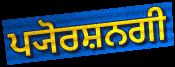
ਪ੍ਯੋਰਸ਼ਨਗੀ